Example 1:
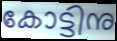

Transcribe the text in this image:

കോട്ടിനു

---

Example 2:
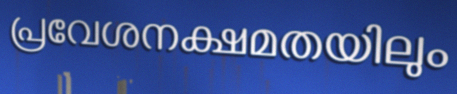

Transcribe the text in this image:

പ്രവേശനക്ഷമതയിലും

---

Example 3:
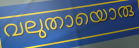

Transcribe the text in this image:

വലുതായൊരു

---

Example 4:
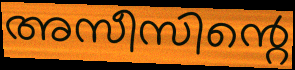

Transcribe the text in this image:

അസീസിന്റെ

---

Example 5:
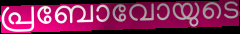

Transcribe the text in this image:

പ്രബോവോയുടെ